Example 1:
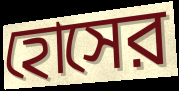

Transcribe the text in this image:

হোসের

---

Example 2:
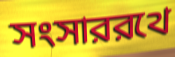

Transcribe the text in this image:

সংসাররথে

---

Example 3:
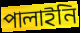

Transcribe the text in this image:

পালাইনি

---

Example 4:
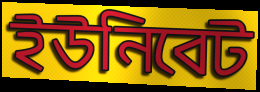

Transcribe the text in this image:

ইউনিবেট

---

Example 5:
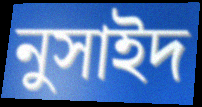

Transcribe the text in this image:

নুসাইদ